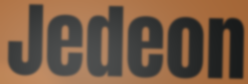
Jedeon